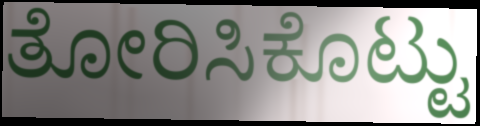
ತೋರಿಸಿಕೊಟ್ಟು